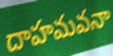
దాహమవనా